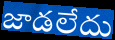
జాడలేదు